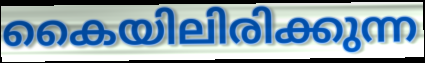
കൈയിലിരിക്കുന്ന